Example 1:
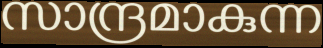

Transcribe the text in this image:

സാന്ദ്രമാകുന്ന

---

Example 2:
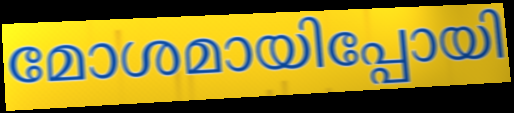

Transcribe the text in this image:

മോശമായിപ്പോയി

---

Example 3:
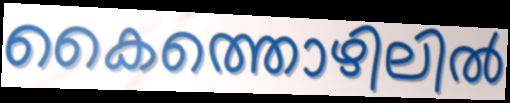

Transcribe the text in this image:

കൈത്തൊഴിലിൽ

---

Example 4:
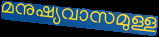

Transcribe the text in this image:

മനുഷ്യവാസമുള്ള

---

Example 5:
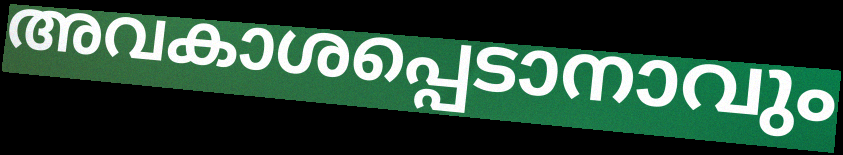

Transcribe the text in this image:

അവകാശപ്പെടാനാവും